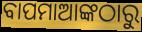
ବାପମାଆଙ୍କଠାରୁ